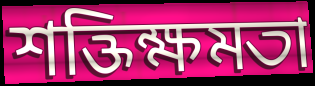
শক্তিক্ষমতা